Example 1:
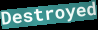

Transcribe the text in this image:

Destroyed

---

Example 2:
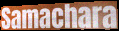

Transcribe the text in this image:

Samachara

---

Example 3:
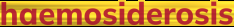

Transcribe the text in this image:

haemosiderosis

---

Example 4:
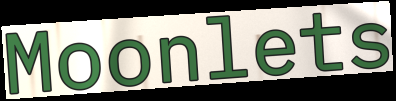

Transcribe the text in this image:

Moonlets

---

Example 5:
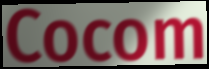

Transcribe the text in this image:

Cocom